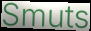
Smuts